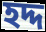
হদ্দ